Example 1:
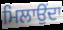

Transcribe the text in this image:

ਮਿਲਾਉਂਦਾ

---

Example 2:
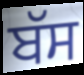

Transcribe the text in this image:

ਬੱਸ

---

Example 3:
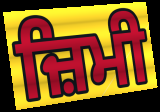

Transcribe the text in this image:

ਜ਼ਿਮੀ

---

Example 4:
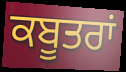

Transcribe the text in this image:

ਕਬੂਤਰਾਂ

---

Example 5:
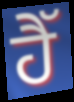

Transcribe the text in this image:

ਹੈੱ